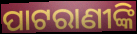
ପାଟରାଣୀଙ୍କି